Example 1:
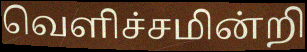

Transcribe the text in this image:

வெளிச்சமின்றி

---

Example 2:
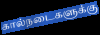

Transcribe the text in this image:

கால்நடைகளுக்கு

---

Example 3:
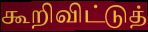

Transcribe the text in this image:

கூறிவிட்டுத்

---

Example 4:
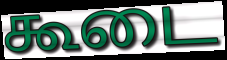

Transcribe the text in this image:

கூடை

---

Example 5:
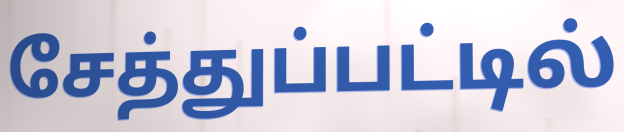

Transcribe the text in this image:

சேத்துப்பட்டில்